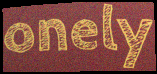
onely